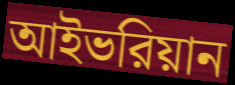
আইভরিয়ান